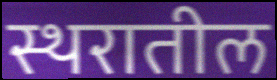
स्थरातील